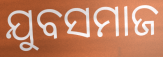
ଯୁବସମାଜ